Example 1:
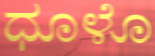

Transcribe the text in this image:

ಧೂಳೊ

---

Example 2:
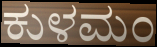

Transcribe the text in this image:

ಕುಳಮಂ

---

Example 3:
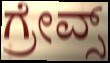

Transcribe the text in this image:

ಗ್ರೇವ್ಸ್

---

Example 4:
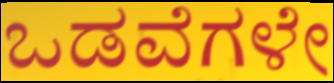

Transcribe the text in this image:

ಒಡವೆಗಳೇ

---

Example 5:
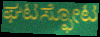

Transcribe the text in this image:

ಘಟಸ್ಫೋಟ